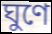
ঘুণে